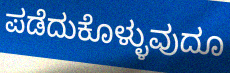
ಪಡೆದುಕೊಳ್ಳುವುದೂ